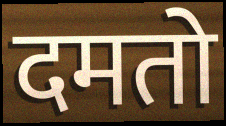
दमतो